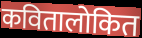
कवितालोकित